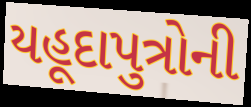
યહૂદાપુત્રોની